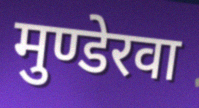
मुण्डेरवा